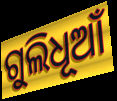
ଗୁଲିଧୂଆଁ